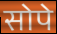
सोपे